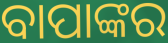
ବାପାଙ୍କର